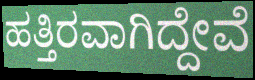
ಹತ್ತಿರವಾಗಿದ್ದೇವೆ